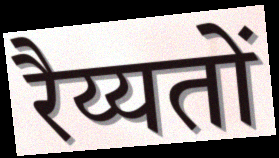
रैय्यतों